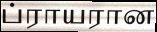
ப்ராயரான